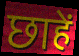
छाहें